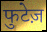
फुटेज़